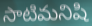
సాటిమనిషి